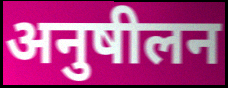
अनुषीलन